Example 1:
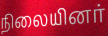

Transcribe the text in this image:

நிலையினர்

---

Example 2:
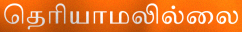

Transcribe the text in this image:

தெரியாமலில்லை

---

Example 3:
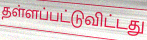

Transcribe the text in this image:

தள்ளப்பட்டுவிட்டது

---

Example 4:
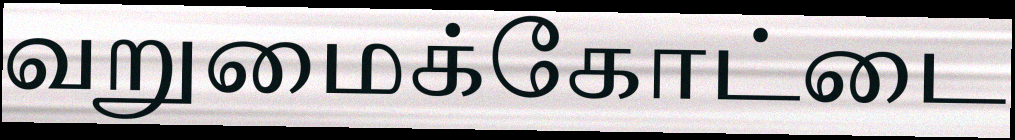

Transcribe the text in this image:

வறுமைக்கோட்டை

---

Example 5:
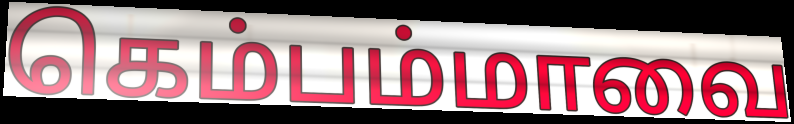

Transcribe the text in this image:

கெம்பம்மாவை